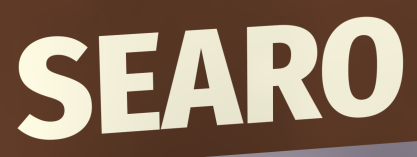
SEARO